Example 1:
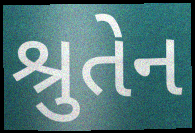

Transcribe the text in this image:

શ્રુતેન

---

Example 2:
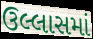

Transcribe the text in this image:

ઉલ્લાસમાં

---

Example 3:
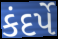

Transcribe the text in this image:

કંદર્પે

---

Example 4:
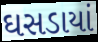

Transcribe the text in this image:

ઘસડાયાં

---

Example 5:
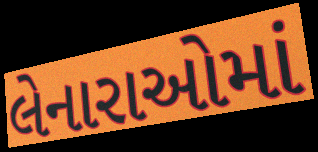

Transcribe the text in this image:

લેનારાઓમાં